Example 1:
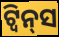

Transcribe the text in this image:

ଟ୍ବିନ୍‌ସ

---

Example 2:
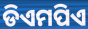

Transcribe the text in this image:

ଡିଏମପିଏ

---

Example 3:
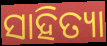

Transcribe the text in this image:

ସାହିତ୍ୟା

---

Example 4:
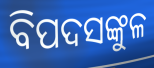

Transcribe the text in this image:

ବିପଦସଙ୍କୁଳ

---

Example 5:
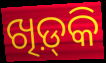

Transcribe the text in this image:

ଖିଡ଼୍‌କି